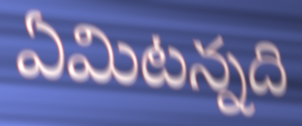
ఏమిటన్నది